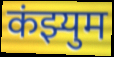
कंझ्युम